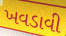
ખવડાવી